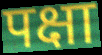
पक्षा